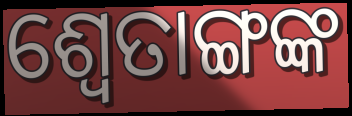
ଶ୍ବେତାଙ୍ଗଙ୍କ